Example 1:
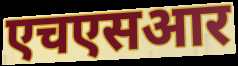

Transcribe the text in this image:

एचएसआर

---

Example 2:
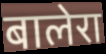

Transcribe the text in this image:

बालेरा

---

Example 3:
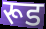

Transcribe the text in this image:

रूड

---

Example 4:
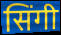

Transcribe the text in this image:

सिंगी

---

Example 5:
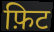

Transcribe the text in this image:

फ़िट